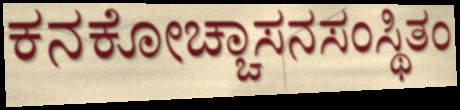
ಕನಕೋಚ್ಚಾಸನಸಂಸ್ಥಿತಂ